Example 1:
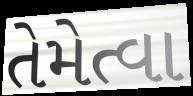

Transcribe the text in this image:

તેમેત્વા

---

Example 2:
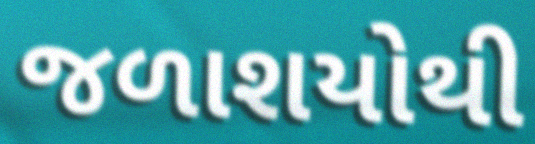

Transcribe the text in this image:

જળાશયોથી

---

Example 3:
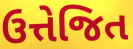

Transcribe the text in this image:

ઉત્તેજિત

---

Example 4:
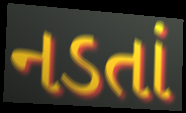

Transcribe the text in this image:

નડતાં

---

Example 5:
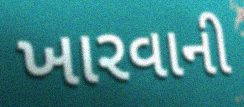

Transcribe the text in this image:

ખારવાની